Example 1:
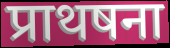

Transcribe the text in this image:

प्राथषना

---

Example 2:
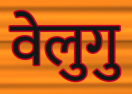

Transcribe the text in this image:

वेलुगु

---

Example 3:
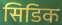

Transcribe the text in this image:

सिडिक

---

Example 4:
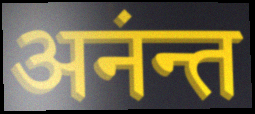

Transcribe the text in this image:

अनंन्त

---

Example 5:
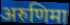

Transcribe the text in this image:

अरुणिमा